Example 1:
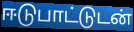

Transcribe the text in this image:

ஈடுபாட்டுடன்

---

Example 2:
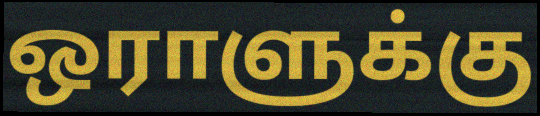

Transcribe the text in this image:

ஒராளுக்கு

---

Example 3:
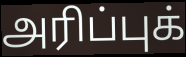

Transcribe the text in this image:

அரிப்புக்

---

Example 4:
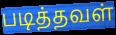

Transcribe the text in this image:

படித்தவள்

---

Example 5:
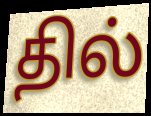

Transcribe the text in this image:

தில்